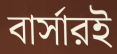
বার্সারই